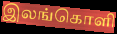
இலங்கொளி